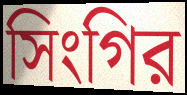
সিংগির